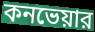
কনভেয়ার